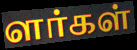
ளர்கள்